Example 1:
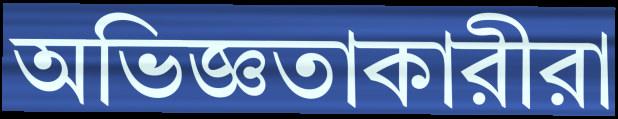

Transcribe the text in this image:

অভিজ্ঞতাকারীরা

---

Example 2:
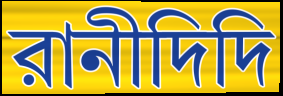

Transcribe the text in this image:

রানীদিদি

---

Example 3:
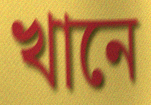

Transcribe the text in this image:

খানে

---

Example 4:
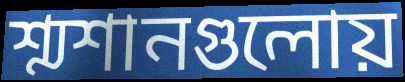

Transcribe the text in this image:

শ্মশানগুলোয়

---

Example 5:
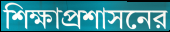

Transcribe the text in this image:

শিক্ষাপ্রশাসনের